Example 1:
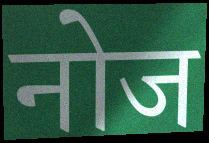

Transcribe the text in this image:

नोज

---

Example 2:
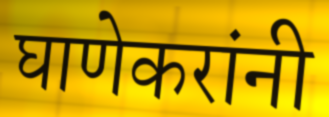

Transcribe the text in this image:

घाणेकरांनी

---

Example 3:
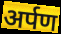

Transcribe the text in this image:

अर्पण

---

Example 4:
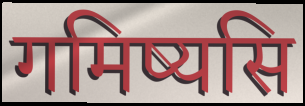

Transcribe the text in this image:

गमिष्यसि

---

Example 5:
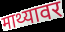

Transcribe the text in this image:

माथ्यावर